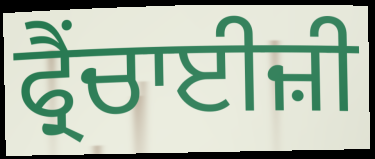
ਫ੍ਰੈਂਚਾਈਜ਼ੀ